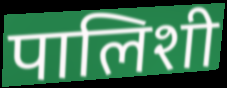
पालिशी